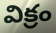
విక్రం